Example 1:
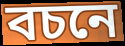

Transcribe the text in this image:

বচনে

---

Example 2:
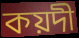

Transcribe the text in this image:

কয়দী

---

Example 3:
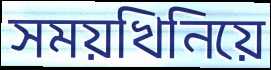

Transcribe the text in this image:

সময়খিনিয়ে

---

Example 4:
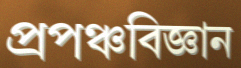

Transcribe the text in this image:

প্ৰপঞ্চবিজ্ঞান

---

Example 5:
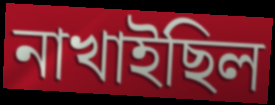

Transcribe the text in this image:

নাখাইছিল